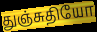
துஞ்சுதியோ